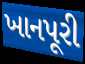
ખાનપૂરી